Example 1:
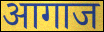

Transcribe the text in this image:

आगाज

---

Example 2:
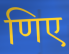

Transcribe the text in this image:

णिए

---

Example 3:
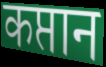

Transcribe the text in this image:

कप्तान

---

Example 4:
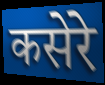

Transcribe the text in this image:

कसेरे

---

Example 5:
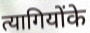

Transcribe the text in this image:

त्यागियोंके